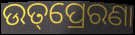
ଉତ୍‌ପ୍ରେରଣା